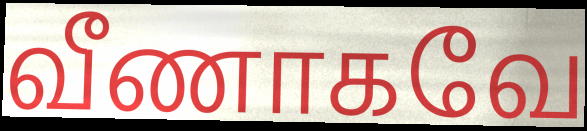
வீணாகவே